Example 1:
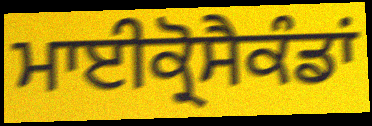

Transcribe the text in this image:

ਮਾਈਕ੍ਰੋਸੈਕੰਡਾਂ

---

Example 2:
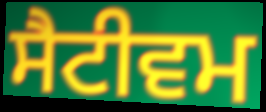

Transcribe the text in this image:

ਸੈਟੀਵਮ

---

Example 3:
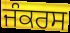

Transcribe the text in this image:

ਜੰਕਰਸ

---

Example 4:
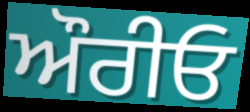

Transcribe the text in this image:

ਔਰੀਓ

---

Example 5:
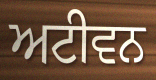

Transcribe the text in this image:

ਅਟੀਵਨ